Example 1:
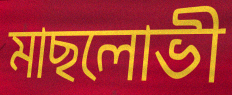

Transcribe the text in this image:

মাছলোভী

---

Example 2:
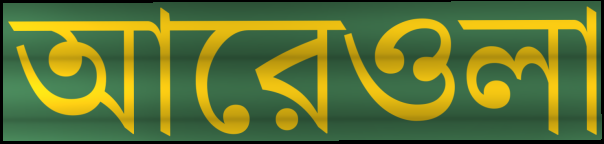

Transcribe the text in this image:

আরেওলা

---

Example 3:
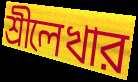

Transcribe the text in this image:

শ্রীলেখার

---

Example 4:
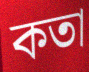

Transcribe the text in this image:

কতা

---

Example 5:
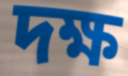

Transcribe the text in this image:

দক্ষ